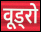
वूड्रो